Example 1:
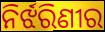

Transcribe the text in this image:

ନିର୍ଝରିଣୀର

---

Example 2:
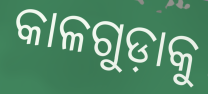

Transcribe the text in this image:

କାଳଗୁଡ଼ାକୁ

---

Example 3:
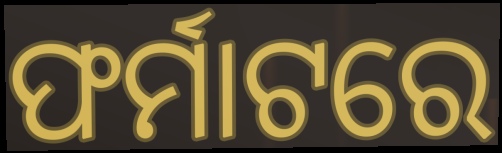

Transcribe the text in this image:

ଫର୍ମାଟରେ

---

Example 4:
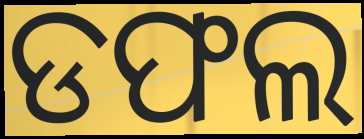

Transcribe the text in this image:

ଡଫଲ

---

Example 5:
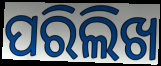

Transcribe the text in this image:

ପରିଲିଖ